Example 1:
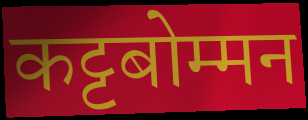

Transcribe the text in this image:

कट्टबोम्मन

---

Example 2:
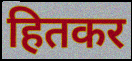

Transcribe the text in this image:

हितकर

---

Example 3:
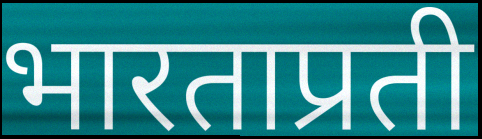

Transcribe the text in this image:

भारताप्रती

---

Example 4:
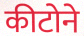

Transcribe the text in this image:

कीटोने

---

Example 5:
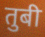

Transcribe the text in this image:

तुबी